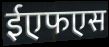
ईएफएस